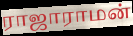
ராஜாராமன்